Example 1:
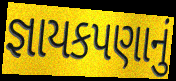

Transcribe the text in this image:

જ્ઞાયકપણાનું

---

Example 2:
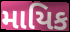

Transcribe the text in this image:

માયિક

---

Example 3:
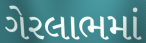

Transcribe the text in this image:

ગેરલાભમાં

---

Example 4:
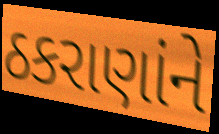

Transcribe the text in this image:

ઠકરાણાંને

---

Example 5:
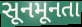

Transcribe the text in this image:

સૂનમૂનતા